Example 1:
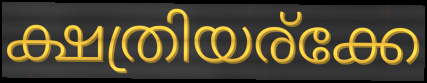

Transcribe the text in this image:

ക്ഷത്രിയര്ക്കേ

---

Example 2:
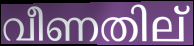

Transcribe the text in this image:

വീണതില്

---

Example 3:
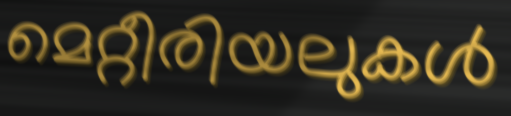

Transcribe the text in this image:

മെറ്റീരിയലുകൾ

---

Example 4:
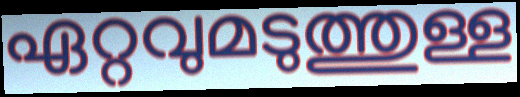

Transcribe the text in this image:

ഏറ്റവുമടുത്തുള്ള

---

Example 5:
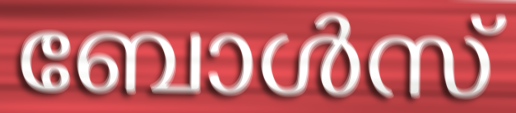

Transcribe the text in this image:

ബോൾസ്